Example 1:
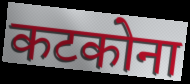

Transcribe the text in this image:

कटकोना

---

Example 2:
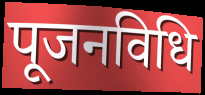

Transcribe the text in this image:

पूजनविधि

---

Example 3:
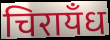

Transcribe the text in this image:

चिरायँध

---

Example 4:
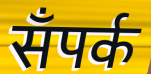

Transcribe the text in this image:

सँपर्क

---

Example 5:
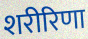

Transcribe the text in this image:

शरीरिणा